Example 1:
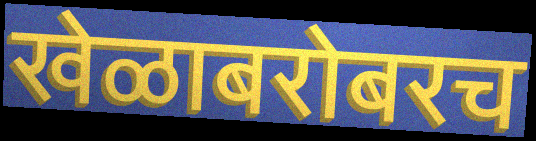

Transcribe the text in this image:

खेळाबरोबरच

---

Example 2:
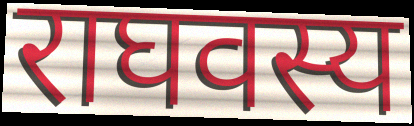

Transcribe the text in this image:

राघवस्य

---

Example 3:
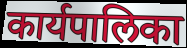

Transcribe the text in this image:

कार्यपालिका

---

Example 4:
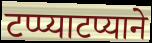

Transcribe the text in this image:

टप्प्याटप्याने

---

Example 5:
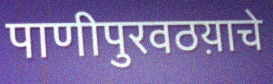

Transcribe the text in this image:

पाणीपुरवठय़ाचे